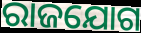
ରାଜଯୋଗ